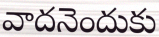
వాదనెందుకు